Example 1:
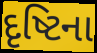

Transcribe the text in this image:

દૃષ્ટિના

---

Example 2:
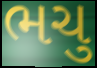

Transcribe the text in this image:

ભચુ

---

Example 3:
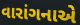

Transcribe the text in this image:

વારાંગનાએ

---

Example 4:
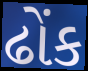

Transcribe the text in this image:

ઢોંક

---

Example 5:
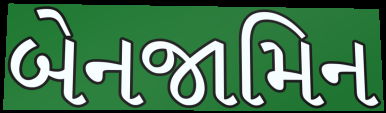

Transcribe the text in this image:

બેનજામિન